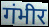
गंभीर